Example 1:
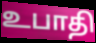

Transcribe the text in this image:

உபாதி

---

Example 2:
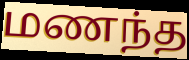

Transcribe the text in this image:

மணந்த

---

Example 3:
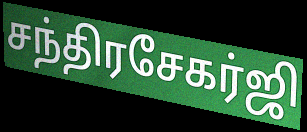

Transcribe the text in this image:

சந்திரசேகர்ஜி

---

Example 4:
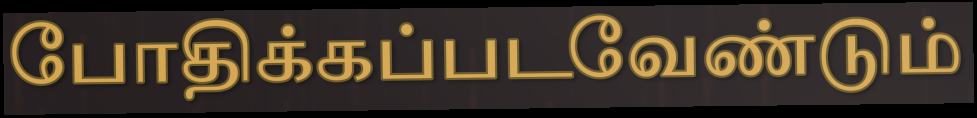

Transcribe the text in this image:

போதிக்கப்படவேண்டும்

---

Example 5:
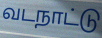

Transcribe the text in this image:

வடநாட்டு